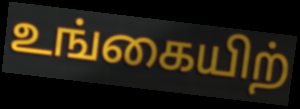
உங்கையிற்